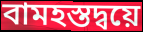
বামহস্তদ্বয়ে